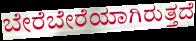
ಬೇರೆಬೇರೆಯಾಗಿರುತ್ತದೆ